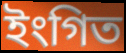
ইংগিত